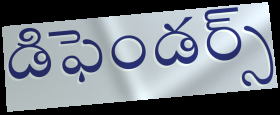
డిఫెండర్స్